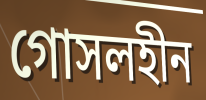
গোসলহীন